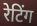
रेटिंग